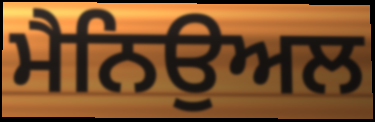
ਮੈਨਿਉਅਲ